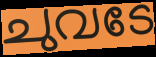
ചുവടേ